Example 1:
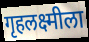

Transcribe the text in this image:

गृहलक्ष्मीला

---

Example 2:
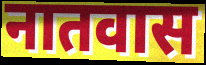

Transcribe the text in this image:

नातवास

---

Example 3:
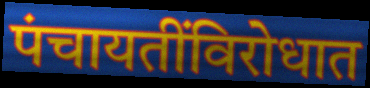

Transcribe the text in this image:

पंचायतींविरोधात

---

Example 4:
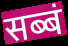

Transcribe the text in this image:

सब्बं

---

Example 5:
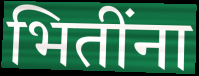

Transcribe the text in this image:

भितींना